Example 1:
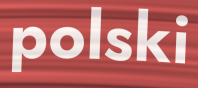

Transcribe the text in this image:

polski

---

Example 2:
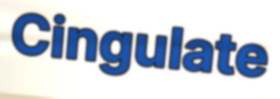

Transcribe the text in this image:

Cingulate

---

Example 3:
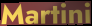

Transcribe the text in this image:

Martini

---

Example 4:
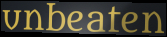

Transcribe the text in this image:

unbeaten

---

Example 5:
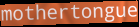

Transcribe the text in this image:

mothertongue